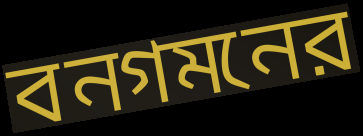
বনগমনের